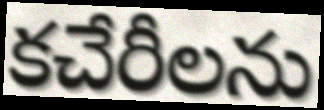
కచేరీలను